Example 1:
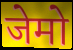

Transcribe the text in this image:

जेमो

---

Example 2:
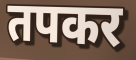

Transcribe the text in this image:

तपकर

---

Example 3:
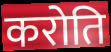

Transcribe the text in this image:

करोति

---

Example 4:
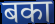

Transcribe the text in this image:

बका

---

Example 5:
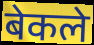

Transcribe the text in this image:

बेकले